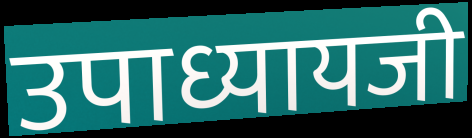
उपाध्यायजी